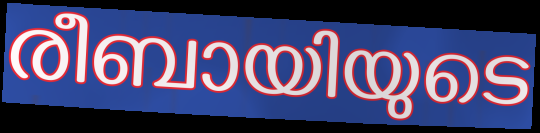
രീബായിയുടെ